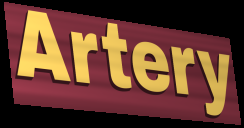
Artery